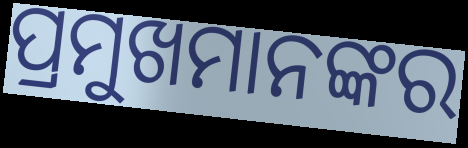
ପ୍ରମୁଖମାନଙ୍କର